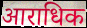
आराधिक